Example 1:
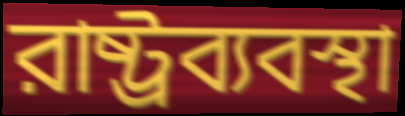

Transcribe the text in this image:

রাষ্ট্রব্যবস্থা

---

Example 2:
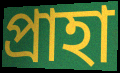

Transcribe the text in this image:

প্রাহা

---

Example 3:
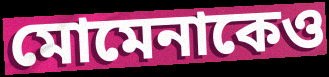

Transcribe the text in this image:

মোমেনাকেও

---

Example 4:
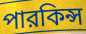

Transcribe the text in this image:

পারকিন্স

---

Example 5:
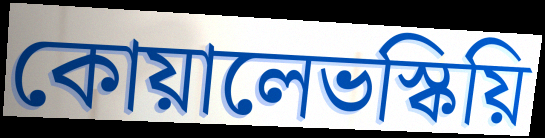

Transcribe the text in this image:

কোয়ালেভস্কিয়ি